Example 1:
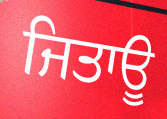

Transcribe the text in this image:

ਜਿਤਾਊ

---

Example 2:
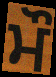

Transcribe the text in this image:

ਮੌ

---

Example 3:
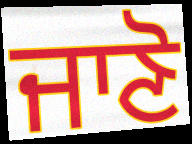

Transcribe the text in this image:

ਜਾਣੋ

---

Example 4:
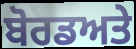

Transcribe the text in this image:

ਬੋਰਡਅਤੇ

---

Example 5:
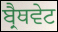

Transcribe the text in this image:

ਬ੍ਰੈਥਵੇਟ